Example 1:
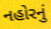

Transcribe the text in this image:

નહોરનું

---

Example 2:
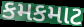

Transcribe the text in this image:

કમકમાટ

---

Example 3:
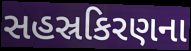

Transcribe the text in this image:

સહસ્રકિરણના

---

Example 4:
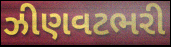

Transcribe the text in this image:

ઝીણવટભરી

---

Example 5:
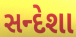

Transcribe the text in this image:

સન્દેશા